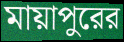
মায়াপুরের